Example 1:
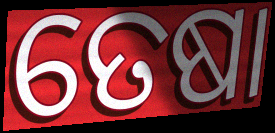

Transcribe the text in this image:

ତେଷା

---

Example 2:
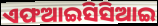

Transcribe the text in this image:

ଏଫଆଇସିସିଆଇ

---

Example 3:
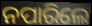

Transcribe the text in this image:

ନପାରିଲେ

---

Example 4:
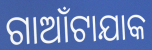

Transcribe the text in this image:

ଗାଆଁଟାଯାକ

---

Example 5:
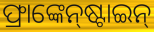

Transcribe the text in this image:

ଫ୍ରାଙ୍କେନ୍‌ଷ୍ଟାଇନ୍